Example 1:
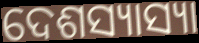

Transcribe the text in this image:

ଦେଶସ୍ୟାସ୍ୟା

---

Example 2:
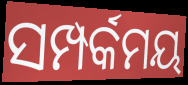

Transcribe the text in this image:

ସମ୍ପର୍କମୟ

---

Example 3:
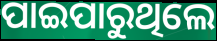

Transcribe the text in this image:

ପାଇପାରୁଥିଲେ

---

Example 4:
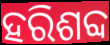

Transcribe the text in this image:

ହରିଶବ୍ଦ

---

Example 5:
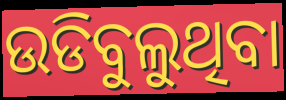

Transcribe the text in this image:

ଉଡିବୁଲୁଥିବା